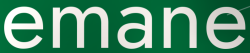
emane